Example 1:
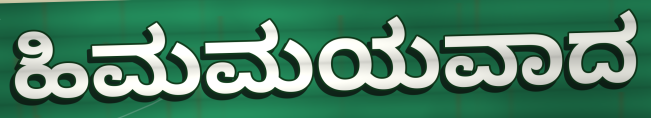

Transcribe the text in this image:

ಹಿಮಮಯವಾದ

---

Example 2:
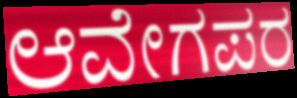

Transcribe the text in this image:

ಆವೇಗಪರ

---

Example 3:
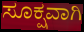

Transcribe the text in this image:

ಸೂಕ್ಷವಾಗಿ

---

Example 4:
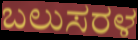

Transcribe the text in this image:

ಬಲುಸರಳ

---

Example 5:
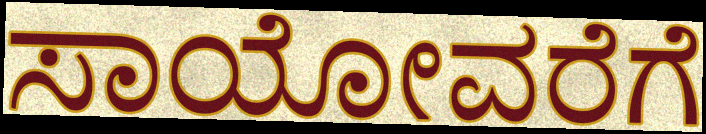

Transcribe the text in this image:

ಸಾಯೋವರೆಗೆ